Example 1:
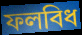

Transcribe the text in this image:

ফলবিধ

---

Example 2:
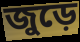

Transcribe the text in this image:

জুড়ে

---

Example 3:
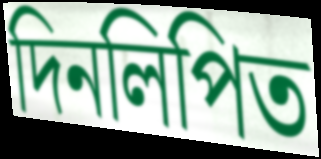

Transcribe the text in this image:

দিনলিপিত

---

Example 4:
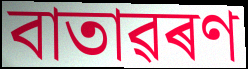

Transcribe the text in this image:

বাতাৱৰণ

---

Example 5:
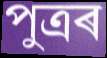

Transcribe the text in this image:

পুত্ৰৰ